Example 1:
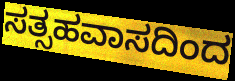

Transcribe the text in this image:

ಸತ್ಸಹವಾಸದಿಂದ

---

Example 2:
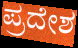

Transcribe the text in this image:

ಪ್ರದೇಶ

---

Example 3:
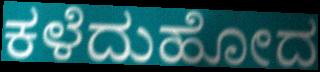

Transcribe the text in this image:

ಕಳೆದುಹೋದ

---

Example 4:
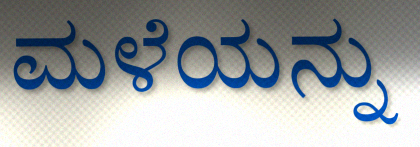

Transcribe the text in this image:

ಮಳೆಯನ್ನು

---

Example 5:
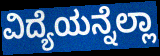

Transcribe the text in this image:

ವಿದ್ಯೆಯನ್ನೆಲ್ಲಾ